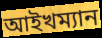
আইখম্যান